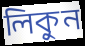
লিকুন